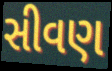
સીવણ